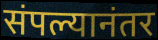
संपल्यानंतर